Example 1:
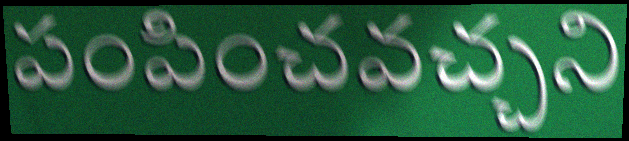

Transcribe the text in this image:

పంపించవచ్చని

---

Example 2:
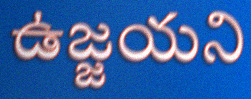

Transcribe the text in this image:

ఉజ్జయని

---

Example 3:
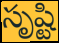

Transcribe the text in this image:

సృష్టి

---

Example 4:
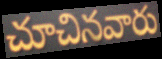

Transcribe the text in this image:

చూచినవారు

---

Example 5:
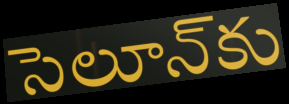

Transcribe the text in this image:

సెలూన్‌కు